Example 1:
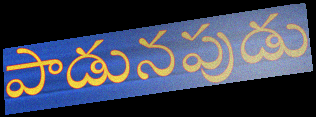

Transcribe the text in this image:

పాడునపుడు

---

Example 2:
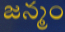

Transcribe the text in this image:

జన్మం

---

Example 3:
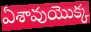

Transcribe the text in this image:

ఏశావుయొక్క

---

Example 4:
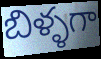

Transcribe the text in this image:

బిళ్ళగా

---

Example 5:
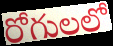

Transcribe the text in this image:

రోగులలో